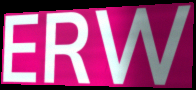
ERW